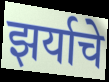
झर्याचे